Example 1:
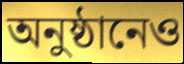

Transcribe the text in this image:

অনুষ্ঠানেও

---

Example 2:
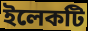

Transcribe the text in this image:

ইলেকটি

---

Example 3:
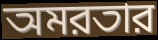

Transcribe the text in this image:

অমরতার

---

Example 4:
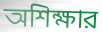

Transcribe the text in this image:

অশিক্ষার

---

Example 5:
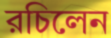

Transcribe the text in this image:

রচিলেন